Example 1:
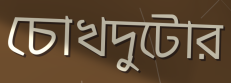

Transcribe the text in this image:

চোখদুটোর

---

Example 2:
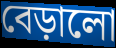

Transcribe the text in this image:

বেড়ালো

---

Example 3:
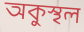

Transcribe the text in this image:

অকুস্থল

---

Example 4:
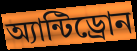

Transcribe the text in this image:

অ্যান্টিড্রোন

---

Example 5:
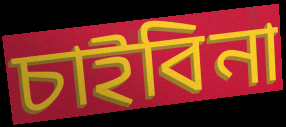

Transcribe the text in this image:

চাইবিনা